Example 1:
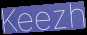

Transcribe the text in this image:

Keezh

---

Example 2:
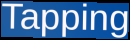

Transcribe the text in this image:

Tapping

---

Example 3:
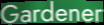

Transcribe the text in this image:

Gardener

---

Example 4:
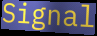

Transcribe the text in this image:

Signal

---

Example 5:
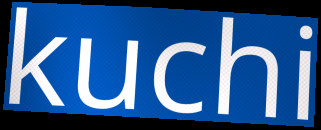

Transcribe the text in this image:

kuchi